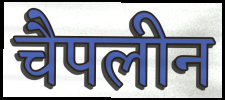
चैपलीन